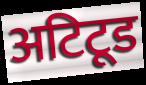
अटिटूड